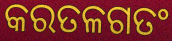
କରତଳଗତଂ